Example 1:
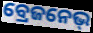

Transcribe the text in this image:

ବ୍ରେଜନେଭ୍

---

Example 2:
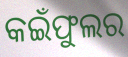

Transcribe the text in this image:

କଇଁଫୁଲର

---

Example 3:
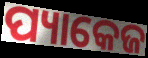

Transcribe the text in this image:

ପ୍ୟାକେଜ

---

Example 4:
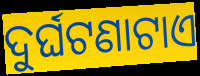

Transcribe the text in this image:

ଦୁର୍ଘଟଣାଟାଏ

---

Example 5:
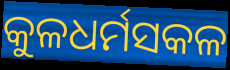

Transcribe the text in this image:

କୁଳଧର୍ମସକଳ